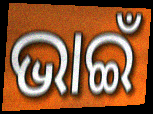
ଭାଇଁ